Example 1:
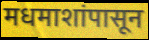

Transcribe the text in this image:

मधमाशांपासून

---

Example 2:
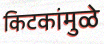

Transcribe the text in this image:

किटकांमुळे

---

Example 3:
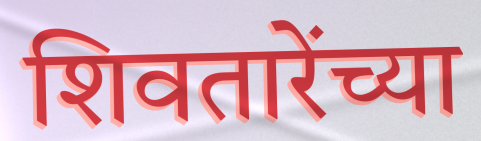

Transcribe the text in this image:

शिवतारेंच्या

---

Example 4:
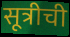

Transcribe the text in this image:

सूत्रीची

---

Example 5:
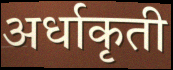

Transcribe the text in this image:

अर्धाकृती